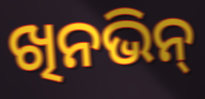
ଖିନଭିନ୍